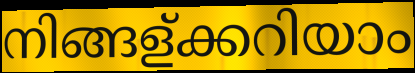
നിങ്ങള്ക്കറിയാം